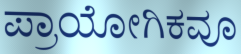
ಪ್ರಾಯೋಗಿಕವೂ